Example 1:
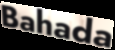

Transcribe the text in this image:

Bahada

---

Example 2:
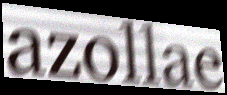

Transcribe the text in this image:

azollae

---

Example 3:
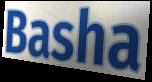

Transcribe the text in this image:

Basha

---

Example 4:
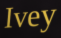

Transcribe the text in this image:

Ivey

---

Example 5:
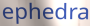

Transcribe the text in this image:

ephedra